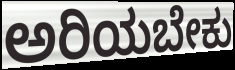
ಅರಿಯಬೇಕು